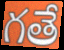
గతే